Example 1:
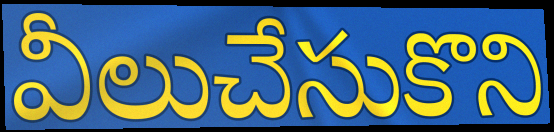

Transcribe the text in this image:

వీలుచేసుకొని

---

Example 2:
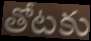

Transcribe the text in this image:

తోటకు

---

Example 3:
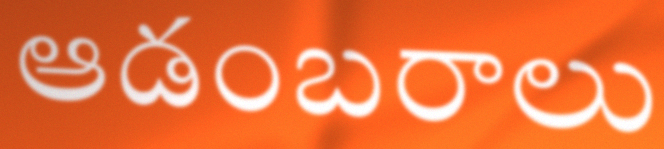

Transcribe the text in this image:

ఆడంబరాలు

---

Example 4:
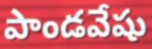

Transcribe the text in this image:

పాండవేషు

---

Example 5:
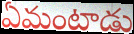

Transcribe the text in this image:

ఏమంటాడు